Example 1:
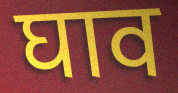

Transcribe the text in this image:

घाव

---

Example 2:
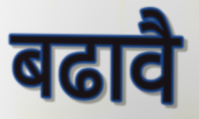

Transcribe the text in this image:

बढावै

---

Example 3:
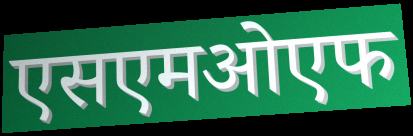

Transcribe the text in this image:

एसएमओएफ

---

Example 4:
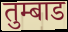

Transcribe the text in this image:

तुम्बाड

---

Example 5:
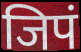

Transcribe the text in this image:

जिपं